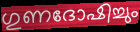
ഗുണദോഷിച്ചും